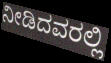
ನೀಡಿದವರಲ್ಲಿ